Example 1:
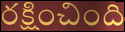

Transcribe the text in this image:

రక్షించింది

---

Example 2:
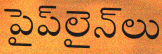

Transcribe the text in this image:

పైప్‌లైన్‌లు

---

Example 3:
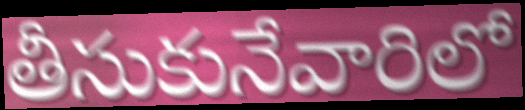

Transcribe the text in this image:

తీసుకునేవారిలో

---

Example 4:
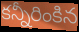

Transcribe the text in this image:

కన్నీరింకిన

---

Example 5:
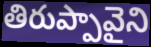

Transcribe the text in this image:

తిరుప్పావైని